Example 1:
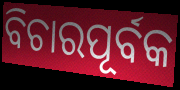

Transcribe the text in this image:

ବିଚାରପୂର୍ବକ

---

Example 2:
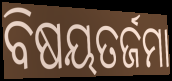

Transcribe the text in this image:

ବିଷୟତର୍ଜମା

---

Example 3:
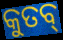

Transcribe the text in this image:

କୁତବ୍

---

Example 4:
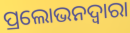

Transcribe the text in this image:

ପ୍ରଲୋଭନଦ୍ୱାରା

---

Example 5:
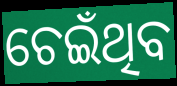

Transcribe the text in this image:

ଚେଇଁଥିବ